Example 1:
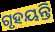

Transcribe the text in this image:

ଗୃହୟନ୍ତି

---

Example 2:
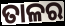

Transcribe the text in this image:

ତାଳର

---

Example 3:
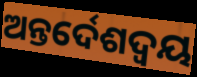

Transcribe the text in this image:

ଅନ୍ତର୍ଦେଶଦ୍ଵୟ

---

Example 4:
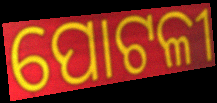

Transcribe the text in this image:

ପୋଟଳୀ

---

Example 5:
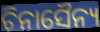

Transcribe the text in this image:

ଚିନାସୈନ୍ୟ